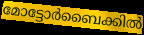
മോട്ടോർബൈക്കിൽ